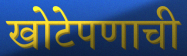
खोटेपणाची